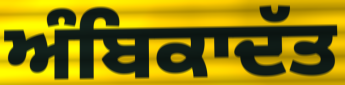
ਅੰਬਿਕਾਦੱਤ